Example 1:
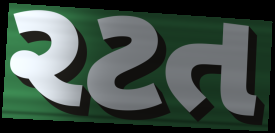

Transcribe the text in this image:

રટત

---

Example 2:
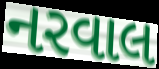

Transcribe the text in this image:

નરવાલ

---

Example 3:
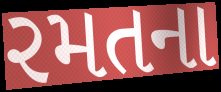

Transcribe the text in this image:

રમતના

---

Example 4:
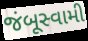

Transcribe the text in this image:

જંબૂસ્વામી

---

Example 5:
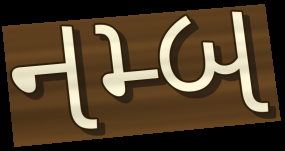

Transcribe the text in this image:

નમ્બ